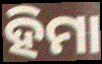
ହିମା